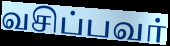
வசிப்பவர்